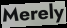
Merely